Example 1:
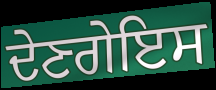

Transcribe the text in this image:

ਦੇਣਗੇਇਸ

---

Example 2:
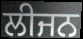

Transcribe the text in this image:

ਲੀਜਨ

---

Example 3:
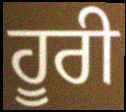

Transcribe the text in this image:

ਹੂਰੀ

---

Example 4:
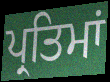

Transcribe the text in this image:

ਪ੍ਰਤਿਮਾਂ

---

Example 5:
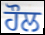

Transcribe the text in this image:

ਹੌਲ